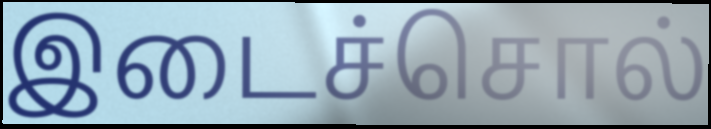
இடைச்சொல்